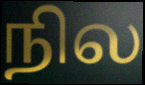
நில